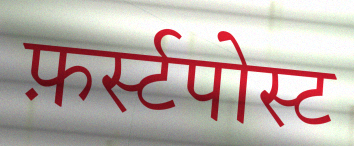
फ़र्स्टपोस्ट